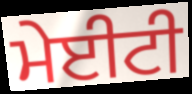
ਮੇਈਟੀ